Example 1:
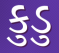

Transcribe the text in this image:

કુડુ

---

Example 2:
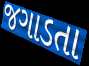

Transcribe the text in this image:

જગાડતા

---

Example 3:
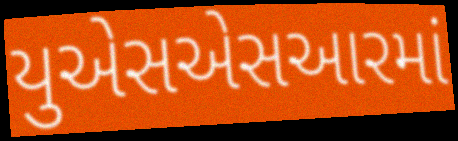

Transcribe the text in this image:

યુએસએસઆરમાં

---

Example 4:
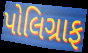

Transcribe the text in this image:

પોલિગ્રાફ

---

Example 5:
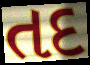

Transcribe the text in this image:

તદ